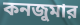
কনজুমার